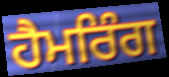
ਹੈਮਰਿੰਗ